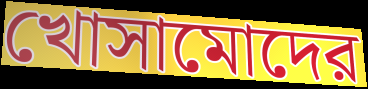
খোসামোদের